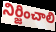
నిర్జించాలి